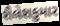
શૈલેશકુમાર